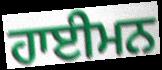
ਹਾਈਮਨ